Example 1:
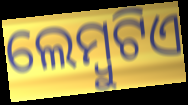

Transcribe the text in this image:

ଲେମ୍ବୁଟିଏ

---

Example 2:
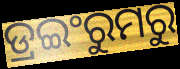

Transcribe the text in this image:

ଡ୍ରଇଂରୁମରୁ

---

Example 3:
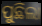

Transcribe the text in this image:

ପୁଛିଲା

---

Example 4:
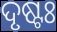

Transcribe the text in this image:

ଦୃଷ୍ଟଃ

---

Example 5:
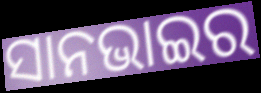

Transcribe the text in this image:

ସାନଭାଇର